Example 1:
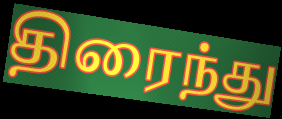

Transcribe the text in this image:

திரைந்து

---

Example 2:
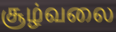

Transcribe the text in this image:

சூழ்வலை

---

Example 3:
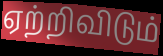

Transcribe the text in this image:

ஏற்றிவிடும்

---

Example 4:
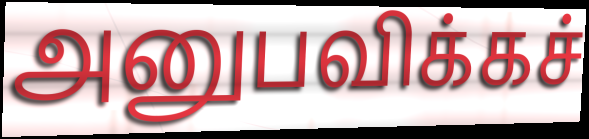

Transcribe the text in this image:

அனுபவிக்கச்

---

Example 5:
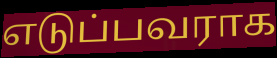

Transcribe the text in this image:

எடுப்பவராக